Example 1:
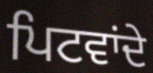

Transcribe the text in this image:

ਪਿਟਵਾਂਦੇ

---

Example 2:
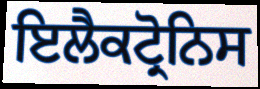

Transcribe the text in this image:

ਇਲੈਕਟ੍ਰੋਨਿਸ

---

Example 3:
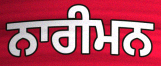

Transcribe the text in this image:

ਨਾਰੀਮਨ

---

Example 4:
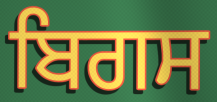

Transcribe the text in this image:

ਬਿਗਸ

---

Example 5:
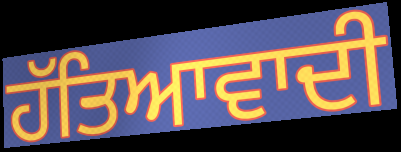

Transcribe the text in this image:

ਹੱਤਿਆਵਾਦੀ